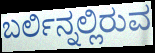
ಬರ್ಲಿನ್ನಲ್ಲಿರುವ